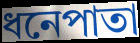
ধনেপাতা